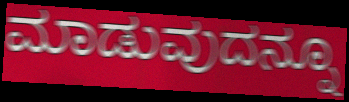
ಮಾಡುವುದನ್ನೂ